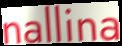
nallina